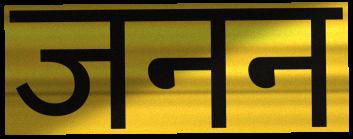
जनन